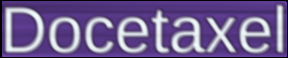
Docetaxel